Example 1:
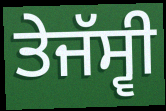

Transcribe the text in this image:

ਤੇਜੱਸ੍ਵੀ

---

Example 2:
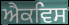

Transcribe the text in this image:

ਐਕਵਿਸ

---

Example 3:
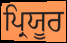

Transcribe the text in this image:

ਪ੍ਰਿਯੂਰ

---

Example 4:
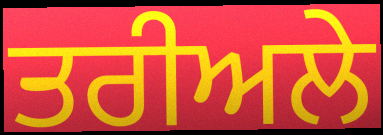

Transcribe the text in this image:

ਤਰੀਅਲੇ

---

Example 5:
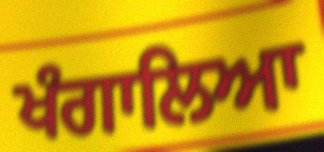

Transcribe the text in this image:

ਖੰਗਾਲਿਆ